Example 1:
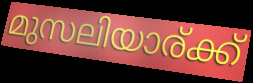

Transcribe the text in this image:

മുസലിയാര്ക്ക്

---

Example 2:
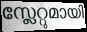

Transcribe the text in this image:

സ്ലേറ്റുമായി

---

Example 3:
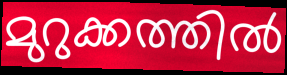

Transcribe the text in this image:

മുറുക്കത്തിൽ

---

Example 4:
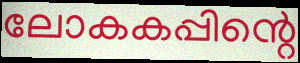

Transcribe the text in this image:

ലോകകപ്പിന്റെ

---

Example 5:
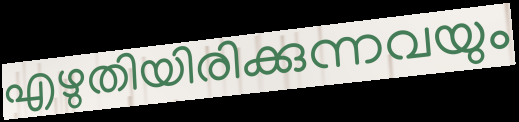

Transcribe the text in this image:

എഴുതിയിരിക്കുന്നവയും